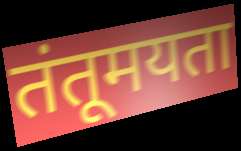
तंतूमयता